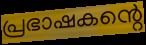
പ്രഭാഷകന്റെ